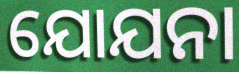
ଯୋଯନା